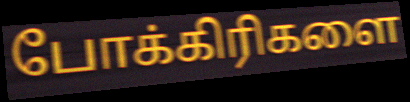
போக்கிரிகளை